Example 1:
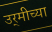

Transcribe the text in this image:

उर्मीच्या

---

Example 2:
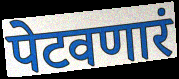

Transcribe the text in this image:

पेटवणारं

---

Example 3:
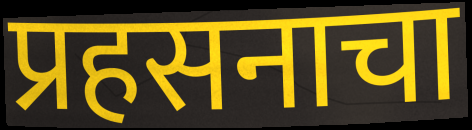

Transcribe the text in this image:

प्रहसनाचा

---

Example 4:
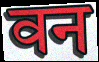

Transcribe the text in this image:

वन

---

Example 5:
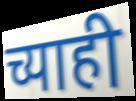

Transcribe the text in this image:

च्याही